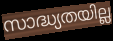
സാദ്ധ്യതയില്ല